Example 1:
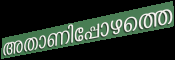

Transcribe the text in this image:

അതാണിപ്പോഴത്തെ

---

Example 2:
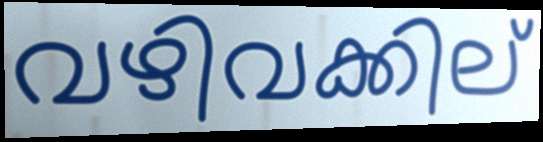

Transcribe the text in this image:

വഴിവക്കില്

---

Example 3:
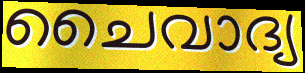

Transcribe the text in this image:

ചൈവാദ്യ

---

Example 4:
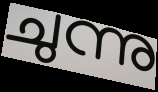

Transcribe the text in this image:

ചുന്നു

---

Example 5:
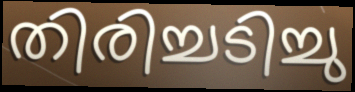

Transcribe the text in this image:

തിരിച്ചടിച്ചു